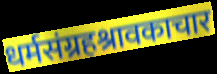
धर्मसंग्रहश्रावकाचार